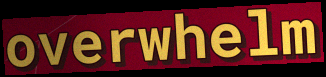
overwhelm